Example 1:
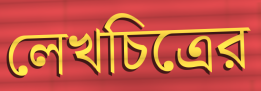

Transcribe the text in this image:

লেখচিত্রের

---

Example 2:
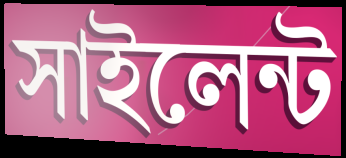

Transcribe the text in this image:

সাইলেন্ট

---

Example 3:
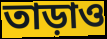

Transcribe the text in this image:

তাড়াও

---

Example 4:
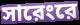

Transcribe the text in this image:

সারেংরে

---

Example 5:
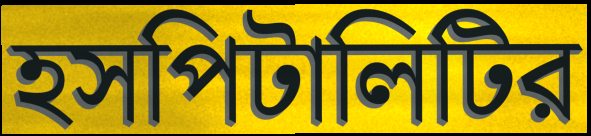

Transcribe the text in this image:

হসপিটালিটির